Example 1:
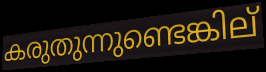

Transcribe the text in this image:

കരുതുന്നുണ്ടെങ്കില്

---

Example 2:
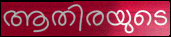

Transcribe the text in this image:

ആതിരയുടെ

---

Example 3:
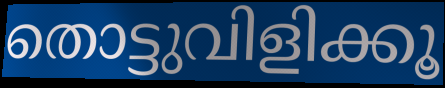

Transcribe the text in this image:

തൊട്ടുവിളിക്കൂ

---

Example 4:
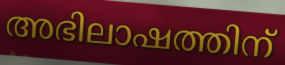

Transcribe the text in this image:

അഭിലാഷത്തിന്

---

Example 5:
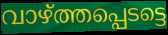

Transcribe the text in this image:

വാഴ്ത്തപ്പെടട്ടെ